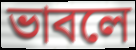
ভাবলে